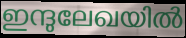
ഇന്ദുലേഖയിൽ